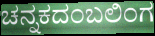
ಚನ್ನಕದಂಬಲಿಂಗ